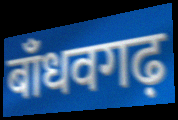
बाँधवगढ़